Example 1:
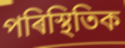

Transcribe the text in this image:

পৰিস্থিতিক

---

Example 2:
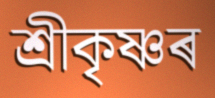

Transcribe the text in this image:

শ্ৰীকৃষ্ণৰ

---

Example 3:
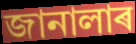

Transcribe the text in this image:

জানালাৰ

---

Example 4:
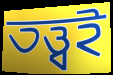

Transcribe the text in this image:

তত্ত্বই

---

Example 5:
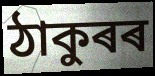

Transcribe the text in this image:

ঠাকুৰৰ